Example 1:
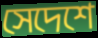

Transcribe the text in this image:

সেদেশে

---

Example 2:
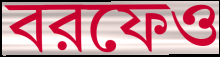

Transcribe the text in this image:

বরফেও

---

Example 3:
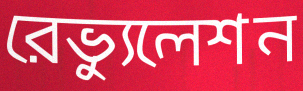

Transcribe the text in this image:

রেভ্যুলেশন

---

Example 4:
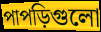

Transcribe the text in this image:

পাপড়িগুলো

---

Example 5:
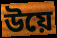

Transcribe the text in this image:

উয়ে